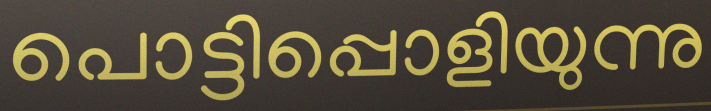
പൊട്ടിപ്പൊളിയുന്നു